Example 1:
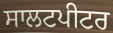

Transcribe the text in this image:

ਸਾਲਟਪੀਟਰ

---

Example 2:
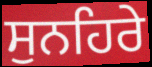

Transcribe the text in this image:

ਸੁਨਹਿਰੇ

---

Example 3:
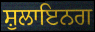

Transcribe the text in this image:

ਸ਼ੁਲਾਇਨਗ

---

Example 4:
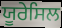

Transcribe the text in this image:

ਯੂਰੇਸਿਲ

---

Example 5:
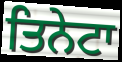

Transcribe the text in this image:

ਤਿਨੇਟਾ